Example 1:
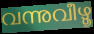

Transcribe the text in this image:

വന്നുവീഴൂ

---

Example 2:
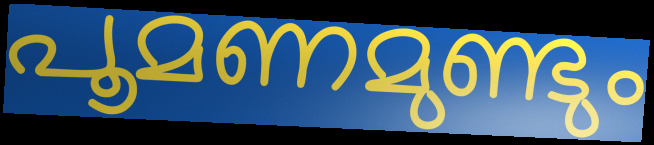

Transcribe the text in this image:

പൂമണമുണ്ടും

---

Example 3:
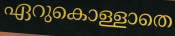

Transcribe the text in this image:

ഏറുകൊള്ളാതെ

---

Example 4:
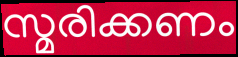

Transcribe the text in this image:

സ്മരിക്കണം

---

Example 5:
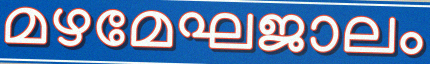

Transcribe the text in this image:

മഴമേഘജാലം